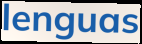
lenguas